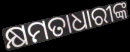
କ୍ଷମତାଧାରୀଙ୍କ